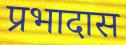
प्रभादास